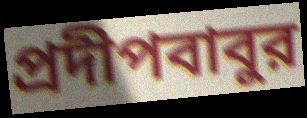
প্রদীপবাবুর